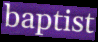
baptist